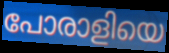
പോരാളിയെ